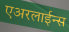
एअरलाईन्स